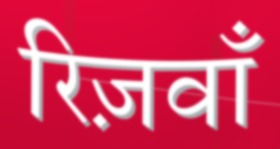
रिज़वाँ